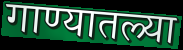
गाण्यातल्या